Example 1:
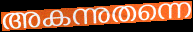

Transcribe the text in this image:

അകന്നുതന്നെ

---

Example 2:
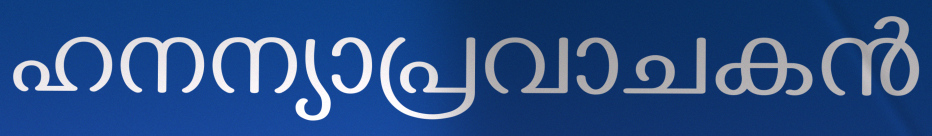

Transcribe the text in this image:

ഹനന്യാപ്രവാചകൻ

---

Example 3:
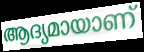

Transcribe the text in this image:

ആദ്യമായാണ്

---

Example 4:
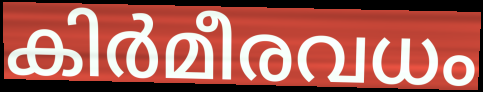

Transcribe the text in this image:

കിർമീരവധം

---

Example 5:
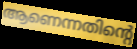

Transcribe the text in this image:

ആണെന്നതിന്റെ